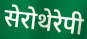
सेरोथेरेपी